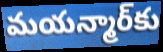
మయన్మార్‌కు